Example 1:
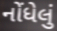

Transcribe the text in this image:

નોંધેલું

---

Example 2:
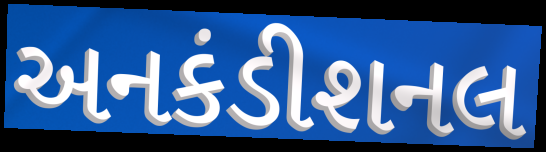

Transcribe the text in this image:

અનકંડીશનલ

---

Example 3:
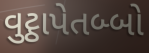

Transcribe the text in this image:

વુટ્ઠાપેતબ્બો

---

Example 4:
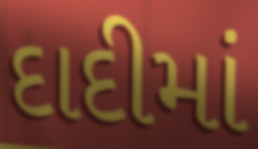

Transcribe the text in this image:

દાદીમાં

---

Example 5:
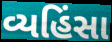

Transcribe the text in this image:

વ્યહિંસા